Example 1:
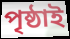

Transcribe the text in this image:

পৃষ্ঠাই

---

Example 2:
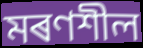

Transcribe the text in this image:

মৰণশীল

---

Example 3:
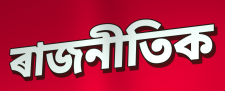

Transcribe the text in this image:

ৰাজনীতিক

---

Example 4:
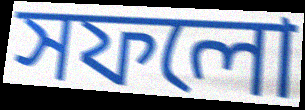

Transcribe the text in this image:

সফলো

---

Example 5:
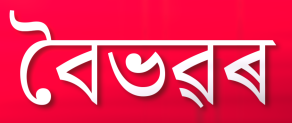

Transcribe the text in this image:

বৈভৱৰ